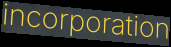
incorporation